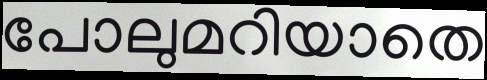
പോലുമറിയാതെ